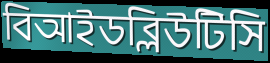
বিআইডব্লিউটিসি